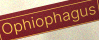
Ophiophagus